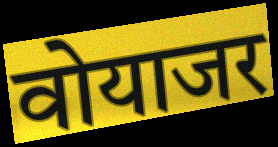
वोयाजर